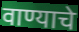
वाण्याचे